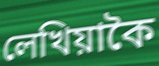
লেখিয়াকৈ